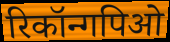
रिकॉन्गपिओ